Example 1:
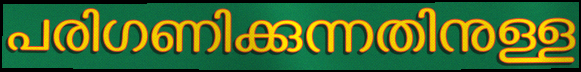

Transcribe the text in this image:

പരിഗണിക്കുന്നതിനുള്ള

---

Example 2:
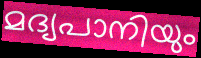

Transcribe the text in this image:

മദ്യപാനിയും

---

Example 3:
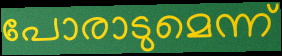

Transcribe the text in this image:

പോരാടുമെന്ന്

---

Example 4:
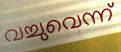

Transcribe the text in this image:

വച്ചുവെന്ന്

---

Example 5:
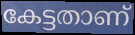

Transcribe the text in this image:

കേട്ടതാണ്